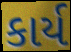
કાર્ય